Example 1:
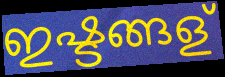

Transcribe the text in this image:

ഇഷ്ടങ്ങള്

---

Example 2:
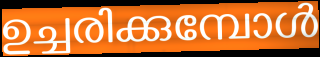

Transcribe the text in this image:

ഉച്ചരിക്കുമ്പോൾ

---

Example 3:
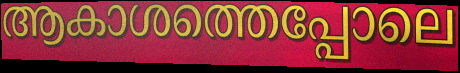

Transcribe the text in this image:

ആകാശത്തെപ്പോലെ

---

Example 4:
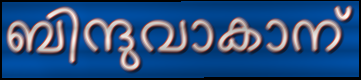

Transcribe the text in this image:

ബിന്ദുവാകാന്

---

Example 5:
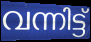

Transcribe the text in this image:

വന്നിട്ട്